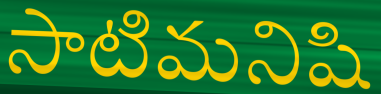
సాటిమనిషి